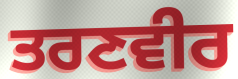
ਤਰਣਵੀਰ